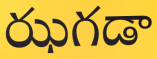
ఝగడా